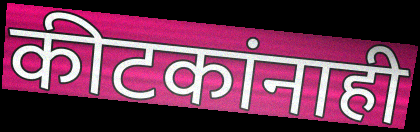
कीटकांनाही